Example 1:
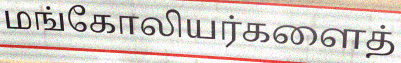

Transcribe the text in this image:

மங்கோலியர்களைத்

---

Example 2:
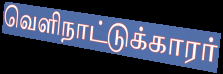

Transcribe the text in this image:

வெளிநாட்டுக்காரர்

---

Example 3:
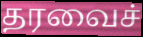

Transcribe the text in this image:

தரவைச்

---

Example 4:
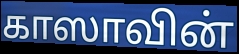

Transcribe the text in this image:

காஸாவின்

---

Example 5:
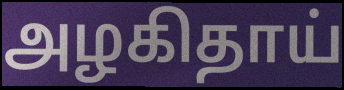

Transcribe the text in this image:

அழகிதாய்